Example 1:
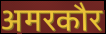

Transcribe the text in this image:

अमरकौर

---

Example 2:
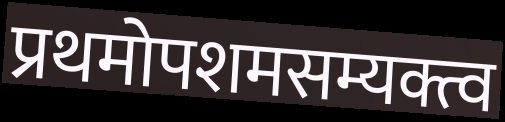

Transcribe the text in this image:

प्रथमोपशमसम्यक्त्व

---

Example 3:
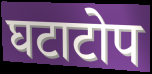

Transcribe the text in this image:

घटाटोप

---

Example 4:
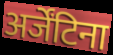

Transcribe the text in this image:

अर्जेंटिना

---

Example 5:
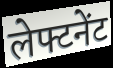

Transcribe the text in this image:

लेफ्टनेंट